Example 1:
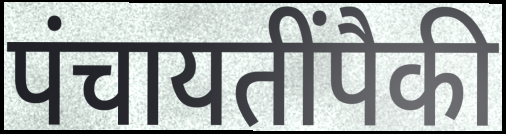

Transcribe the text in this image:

पंचायतींपैकी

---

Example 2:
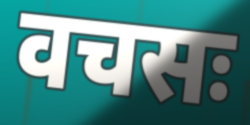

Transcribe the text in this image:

वचसः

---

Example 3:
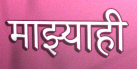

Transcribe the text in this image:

माझ्याही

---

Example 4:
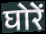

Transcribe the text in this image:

घोरें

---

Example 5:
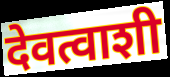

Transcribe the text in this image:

देवत्वाशी